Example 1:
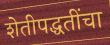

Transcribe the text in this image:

शेतीपद्धतींचा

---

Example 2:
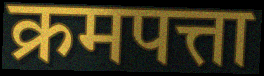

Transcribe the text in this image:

क्रमपत्ता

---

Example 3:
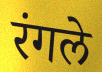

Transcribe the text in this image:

रंगले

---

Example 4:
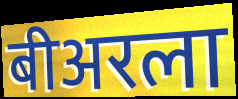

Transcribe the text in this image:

बीअरला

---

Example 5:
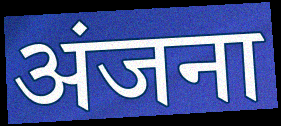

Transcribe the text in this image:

अंजना